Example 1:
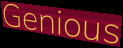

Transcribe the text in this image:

Genious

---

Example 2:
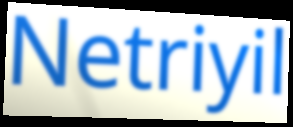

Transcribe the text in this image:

Netriyil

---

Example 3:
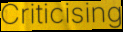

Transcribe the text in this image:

Criticising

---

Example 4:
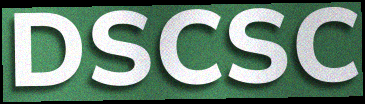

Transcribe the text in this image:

DSCSC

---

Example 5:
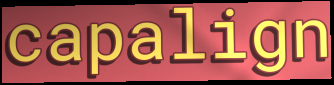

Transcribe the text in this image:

capalign